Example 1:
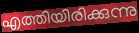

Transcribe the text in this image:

എത്തിയിരിക്കുന്നു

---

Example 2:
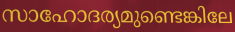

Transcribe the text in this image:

സാഹോദര്യമുണ്ടെങ്കിലേ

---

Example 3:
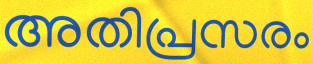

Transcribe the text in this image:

അതിപ്രസരം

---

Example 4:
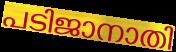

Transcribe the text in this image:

പടിജാനാതി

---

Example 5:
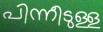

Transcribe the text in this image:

പിന്നീടുള്ള